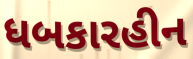
ધબકારહીન